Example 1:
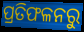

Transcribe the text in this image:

ପ୍ରତିଫଳନରୁ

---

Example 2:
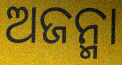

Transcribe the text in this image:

ଅଜନ୍ମା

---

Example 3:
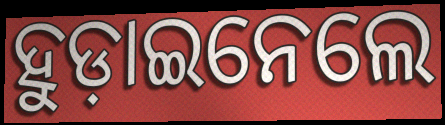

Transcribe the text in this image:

ହୁଡ଼ାଇନେଲେ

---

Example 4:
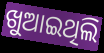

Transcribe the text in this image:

ଖୁଆଇଥିଲି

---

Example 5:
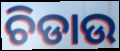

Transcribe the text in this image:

ଚିଡାଉ